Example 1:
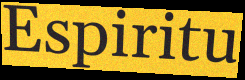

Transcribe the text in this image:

Espiritu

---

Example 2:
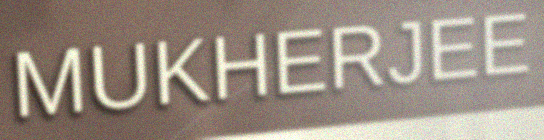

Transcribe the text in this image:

MUKHERJEE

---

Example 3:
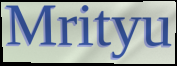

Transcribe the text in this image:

Mrityu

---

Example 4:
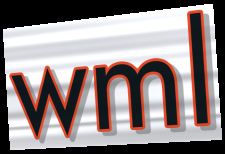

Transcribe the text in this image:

wml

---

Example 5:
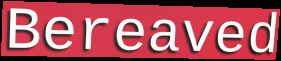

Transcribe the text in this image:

Bereaved